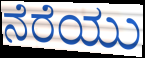
ನೆರೆಯು